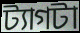
ট্যাগটা